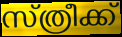
സ്‌ത്രീക്ക്